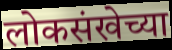
लोकसंखेच्या